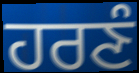
ਹਰਣੰ